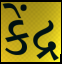
કેંદ્ર